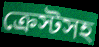
ক্রেস্টসহ